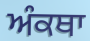
ਅੰਕਥਾ